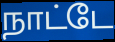
நாட்டே